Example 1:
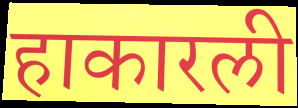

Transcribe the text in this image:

हाकारली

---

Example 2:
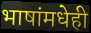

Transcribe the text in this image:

भाषांमधेही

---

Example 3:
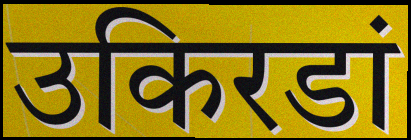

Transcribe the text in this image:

उकिरडां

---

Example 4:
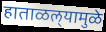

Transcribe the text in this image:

हाताळल्यामुळे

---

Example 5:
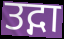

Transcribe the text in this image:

उद्गा